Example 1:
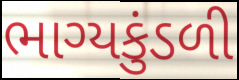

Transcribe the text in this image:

ભાગ્યકુંડળી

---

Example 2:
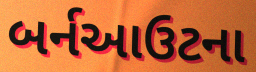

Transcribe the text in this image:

બર્નઆઉટના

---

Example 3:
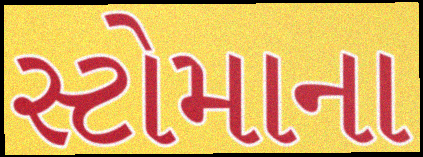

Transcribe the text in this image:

સ્ટોમાના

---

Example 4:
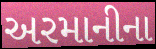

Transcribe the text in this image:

અરમાનીના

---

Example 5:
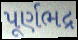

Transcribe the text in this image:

પૂર્ણભદ્ર